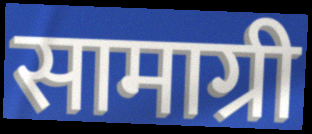
सामाग्री